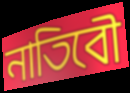
নাতিবৌ